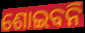
ଶୋଇବନି